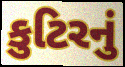
કુટિરનું